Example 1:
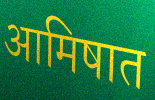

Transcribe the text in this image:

आमिषात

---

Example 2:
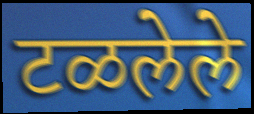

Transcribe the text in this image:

टळलेले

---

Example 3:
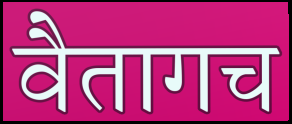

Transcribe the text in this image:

वैतागच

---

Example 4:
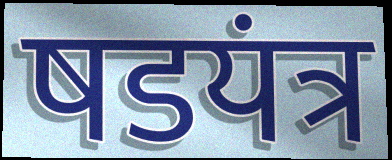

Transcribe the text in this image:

षडयंत्र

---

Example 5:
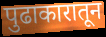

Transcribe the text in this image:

पुढाकारातून